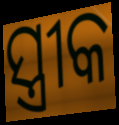
ସ୍ତ୍ରୀକ